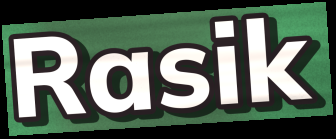
Rasik